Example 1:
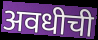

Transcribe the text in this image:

अवधीची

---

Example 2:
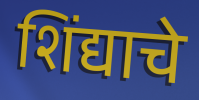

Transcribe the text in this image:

शिंद्याचे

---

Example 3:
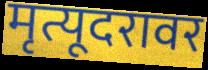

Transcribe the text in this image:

मृत्यूदरावर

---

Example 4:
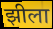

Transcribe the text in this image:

झीला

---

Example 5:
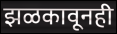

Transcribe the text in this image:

झळकावूनही